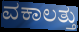
ವಕಾಲತ್ತು